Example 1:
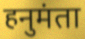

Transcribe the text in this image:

हनुमंता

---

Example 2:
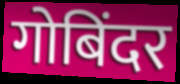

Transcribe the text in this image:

गोबिंदर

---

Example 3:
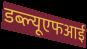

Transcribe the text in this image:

डब्ल्यूएफआई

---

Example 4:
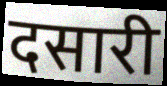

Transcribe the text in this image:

दसारी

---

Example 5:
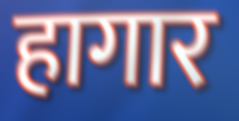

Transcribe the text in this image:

हागार